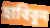
হাবিবুন